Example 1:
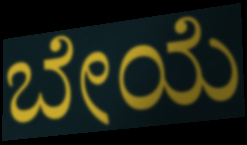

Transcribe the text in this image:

ಬೇಯೆ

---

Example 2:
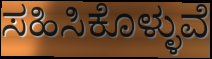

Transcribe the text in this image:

ಸಹಿಸಿಕೊಳ್ಳುವೆ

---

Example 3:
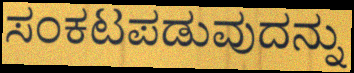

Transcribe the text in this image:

ಸಂಕಟಪಡುವುದನ್ನು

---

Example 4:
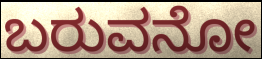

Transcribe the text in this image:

ಬರುವನೋ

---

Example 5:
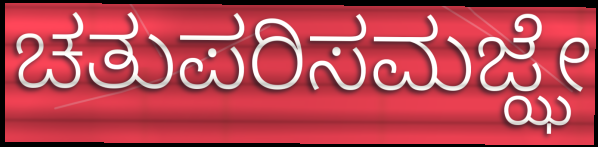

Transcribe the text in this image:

ಚತುಪರಿಸಮಜ್ಝೇ